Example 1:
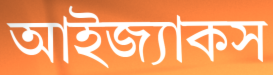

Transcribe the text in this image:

আইজ্যাকস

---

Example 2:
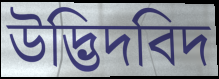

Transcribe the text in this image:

উদ্ভিদবিদ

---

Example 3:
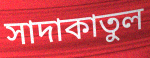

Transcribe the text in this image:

সাদাকাতুল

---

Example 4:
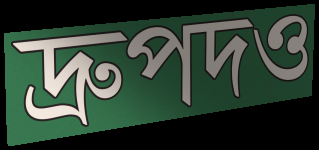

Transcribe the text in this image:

দ্রুপদও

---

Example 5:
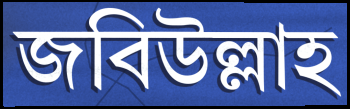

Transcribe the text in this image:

জবিউল্লাহ